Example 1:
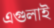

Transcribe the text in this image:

এগুলাই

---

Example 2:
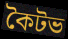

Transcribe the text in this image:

কৈটভ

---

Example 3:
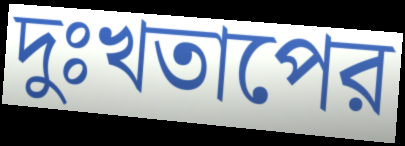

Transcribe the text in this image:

দুঃখতাপের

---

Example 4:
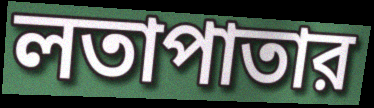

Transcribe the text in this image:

লতাপাতার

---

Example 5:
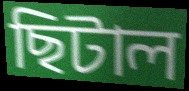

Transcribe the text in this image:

ছিটাল